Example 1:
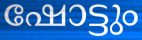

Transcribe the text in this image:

ഷോട്ടും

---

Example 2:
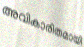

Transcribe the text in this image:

അവികാരിതമായി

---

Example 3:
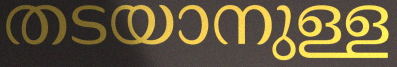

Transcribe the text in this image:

തടയാനുള്ള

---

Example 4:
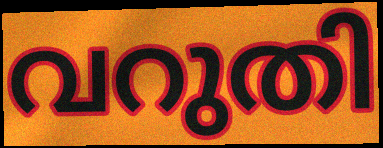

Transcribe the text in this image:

വറുതി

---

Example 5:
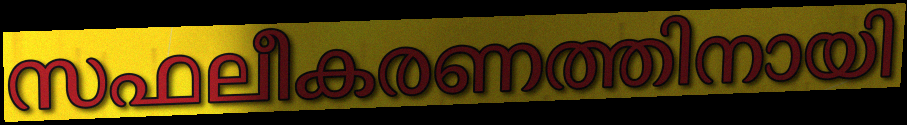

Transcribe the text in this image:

സഫലീകരണത്തിനായി